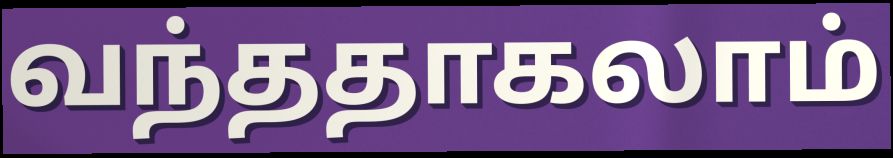
வந்ததாகலாம்